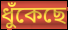
ধুঁকেছে